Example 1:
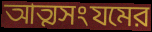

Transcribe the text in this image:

আত্মসংযমের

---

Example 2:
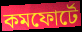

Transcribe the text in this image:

কমফোর্টে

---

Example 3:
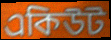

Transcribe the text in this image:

একিউট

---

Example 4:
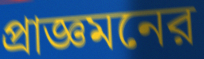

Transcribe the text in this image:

প্রাজ্ঞমনের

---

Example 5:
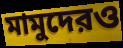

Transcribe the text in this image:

মামুদেরও